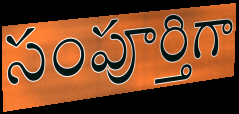
సంపూర్తిగా